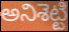
అనిశెట్టి